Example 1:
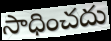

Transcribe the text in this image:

సాధించదు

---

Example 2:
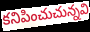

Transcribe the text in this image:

కనిపించుచున్నవి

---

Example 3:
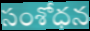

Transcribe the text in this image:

సంశోధన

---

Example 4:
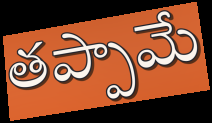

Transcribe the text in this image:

తప్పామే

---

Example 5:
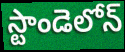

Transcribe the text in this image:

స్టాండెలోన్